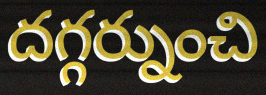
దగ్గర్నుంచి